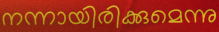
നന്നായിരിക്കുമെന്നു